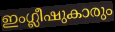
ഇംഗ്ലീഷുകാരും